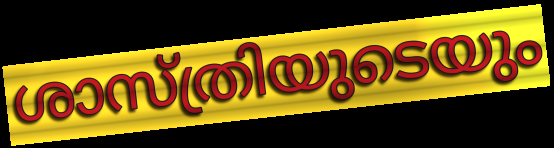
ശാസ്ത്രിയുടെയും